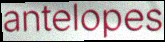
antelopes